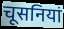
चूसनियां